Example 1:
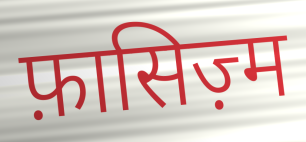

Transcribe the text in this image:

फ़ासिज़्म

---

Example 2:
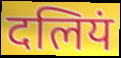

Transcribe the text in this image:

दलियं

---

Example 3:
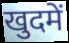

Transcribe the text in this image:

खुदमें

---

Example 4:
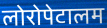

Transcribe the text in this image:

लोरोपेटालम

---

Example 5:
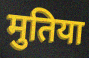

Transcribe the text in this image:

मुतिया